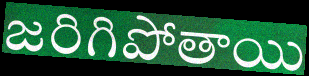
జరిగిపోతాయి